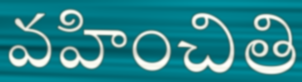
వహించితి